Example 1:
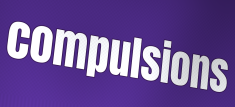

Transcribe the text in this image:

compulsions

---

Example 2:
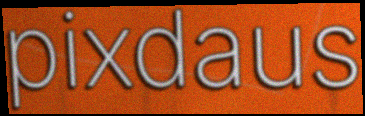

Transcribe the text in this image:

pixdaus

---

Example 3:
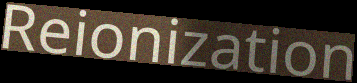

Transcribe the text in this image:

Reionization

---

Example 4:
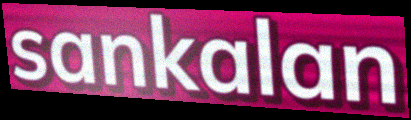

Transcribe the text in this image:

sankalan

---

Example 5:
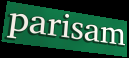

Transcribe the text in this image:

parisam